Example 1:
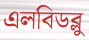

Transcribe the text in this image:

এলবিডব্লু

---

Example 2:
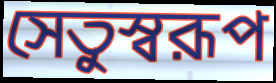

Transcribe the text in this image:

সেতুস্বরূপ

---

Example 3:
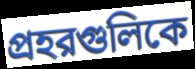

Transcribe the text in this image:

প্রহরগুলিকে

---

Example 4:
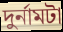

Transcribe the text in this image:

দুর্নামটা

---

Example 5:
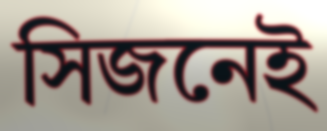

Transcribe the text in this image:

সিজনেই